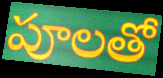
పూలతో